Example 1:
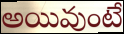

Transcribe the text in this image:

అయివుంటే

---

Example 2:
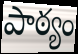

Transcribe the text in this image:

పాఠ్యం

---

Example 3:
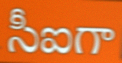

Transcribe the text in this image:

సీఐగా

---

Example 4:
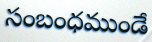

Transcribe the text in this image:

సంబంధముండే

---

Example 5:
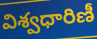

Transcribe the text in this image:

విశ్వధారిణీ